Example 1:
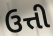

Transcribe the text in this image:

ઉત્તી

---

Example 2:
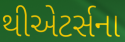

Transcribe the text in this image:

થીએટર્સના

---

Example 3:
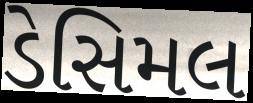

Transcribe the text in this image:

ડેસિમલ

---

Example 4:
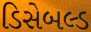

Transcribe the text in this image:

ડિસેબલ્ડ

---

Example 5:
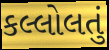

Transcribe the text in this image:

કલ્લોલતું